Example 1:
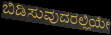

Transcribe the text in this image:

ಬಿಡಿಸುವುದರಲ್ಲಿಯೇ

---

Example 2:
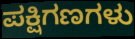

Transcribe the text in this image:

ಪಕ್ಷಿಗಣಗಳು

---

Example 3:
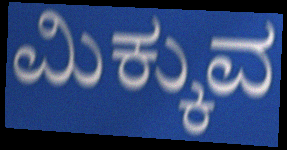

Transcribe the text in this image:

ಮಿಕ್ಕುವ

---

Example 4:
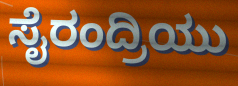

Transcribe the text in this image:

ಸೈರಂದ್ರಿಯು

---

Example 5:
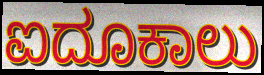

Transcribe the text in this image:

ಐದೂಕಾಲು